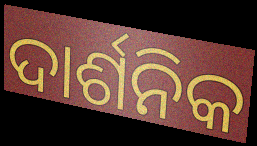
ଦାର୍ଶନିକ